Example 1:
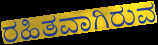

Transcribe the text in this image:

ರಹಿತವಾಗಿರುವ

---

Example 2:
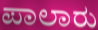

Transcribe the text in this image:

ಪಾಲಾರು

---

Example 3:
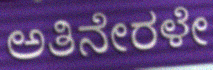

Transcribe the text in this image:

ಅತಿನೇರಳೇ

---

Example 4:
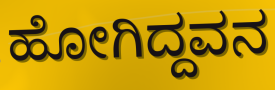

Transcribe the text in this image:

ಹೋಗಿದ್ದವನ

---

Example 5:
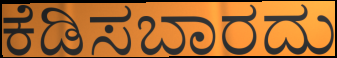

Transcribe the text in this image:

ಕೆಡಿಸಬಾರದು